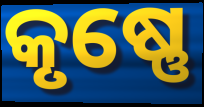
କୃଷ୍ଣେ